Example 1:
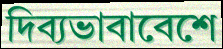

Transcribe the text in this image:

দিব্যভাবাবেশে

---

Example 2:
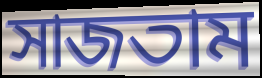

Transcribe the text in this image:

সাজতাম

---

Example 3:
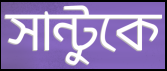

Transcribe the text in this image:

সান্টুকে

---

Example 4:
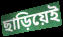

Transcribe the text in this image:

ছাড়িয়েই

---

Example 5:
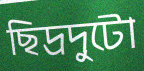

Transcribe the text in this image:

ছিদ্রদুটো